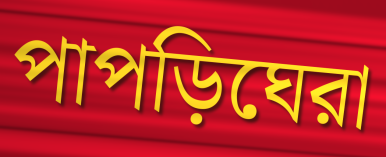
পাপড়িঘেরা